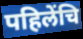
पहिलेंचि